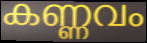
കണ്ണവം